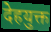
देहयुक्त